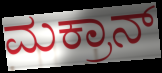
ಮಕ್ರಾನ್